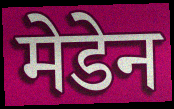
मेडेन